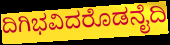
ದಿಗಿಭವಿದರೊಡನೈದಿ